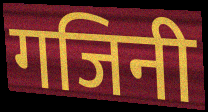
गजिनी